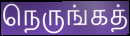
நெருங்கத்